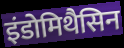
इंडोमिथैसिन